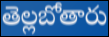
తెల్లబోతారు